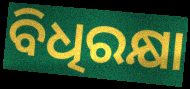
ବିଧିରକ୍ଷା